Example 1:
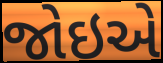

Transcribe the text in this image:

જોઇએ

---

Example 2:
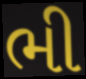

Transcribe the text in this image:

ભી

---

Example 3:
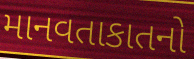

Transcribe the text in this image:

માનવતાકાતનો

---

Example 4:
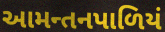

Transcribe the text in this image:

આમન્તનપાળિયં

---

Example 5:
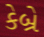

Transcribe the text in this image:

કેબ્રે